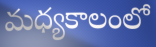
మధ్యకాలంలో